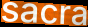
sacra